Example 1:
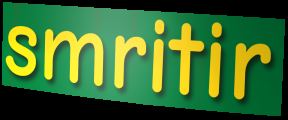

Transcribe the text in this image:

smritir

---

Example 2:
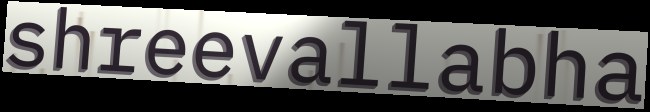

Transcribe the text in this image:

shreevallabha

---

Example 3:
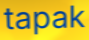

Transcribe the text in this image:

tapak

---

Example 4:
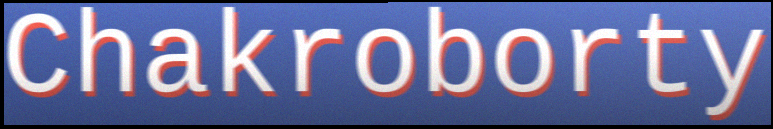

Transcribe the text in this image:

Chakroborty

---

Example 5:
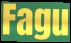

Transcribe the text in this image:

Fagu